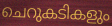
ചെറുകടികളും